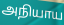
அநியாய